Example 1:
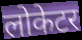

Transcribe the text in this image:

लोकेटर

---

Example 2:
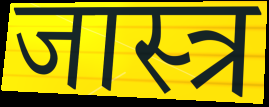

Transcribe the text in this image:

जास्त्र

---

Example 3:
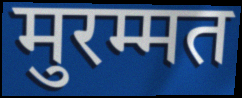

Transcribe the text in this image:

मुरम्मत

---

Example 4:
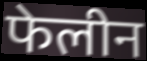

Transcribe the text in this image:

फेलीन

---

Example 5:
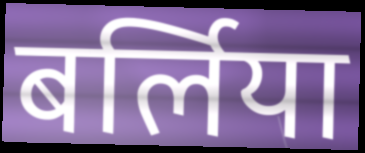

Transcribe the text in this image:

बर्लिया